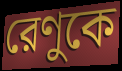
রেণুকে